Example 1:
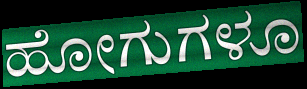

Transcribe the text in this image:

ಹೋಗುಗಳೂ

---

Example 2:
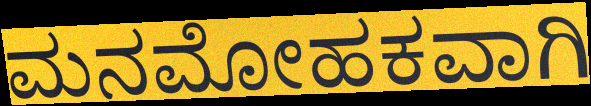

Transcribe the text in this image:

ಮನಮೋಹಕವಾಗಿ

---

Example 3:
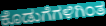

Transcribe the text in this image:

ಕೊಡುಗೆಗಳಿಗಿಂತ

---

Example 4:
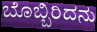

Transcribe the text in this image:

ಬೊಬ್ಬಿರಿದನು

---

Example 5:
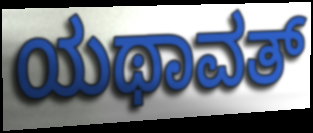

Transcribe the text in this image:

ಯಥಾವತ್